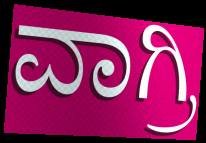
ವಾಗ್ರಿ